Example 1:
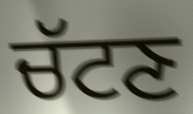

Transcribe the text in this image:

ਚੱਟਣ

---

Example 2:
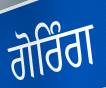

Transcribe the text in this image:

ਗੋਰਿੰਗ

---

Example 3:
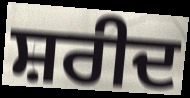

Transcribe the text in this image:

ਸ਼ਰੀਦ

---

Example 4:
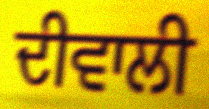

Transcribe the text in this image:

ਦੀਵਾਲੀ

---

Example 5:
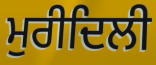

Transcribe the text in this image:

ਮੁਰੀਦਿਲੀ